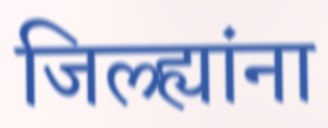
जिल्ह्यांना